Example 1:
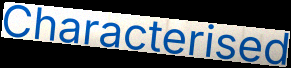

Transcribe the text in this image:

Characterised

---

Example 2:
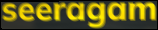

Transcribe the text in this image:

seeragam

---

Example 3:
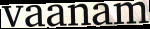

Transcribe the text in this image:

vaanam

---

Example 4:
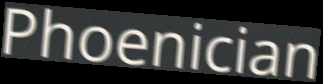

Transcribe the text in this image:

Phoenician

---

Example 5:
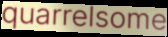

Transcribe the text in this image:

quarrelsome